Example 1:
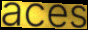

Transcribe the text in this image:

aces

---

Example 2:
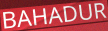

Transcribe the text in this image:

BAHADUR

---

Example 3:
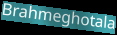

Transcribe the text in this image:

Brahmeghotala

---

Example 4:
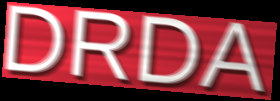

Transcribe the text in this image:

DRDA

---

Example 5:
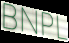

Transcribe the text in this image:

BNPL